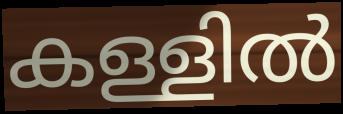
കള്ളിൽ